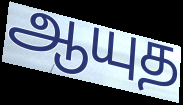
ஆயுத